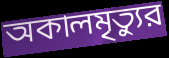
অকালমৃত্যুর